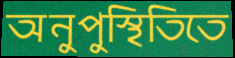
অনুপুস্থিতিতে